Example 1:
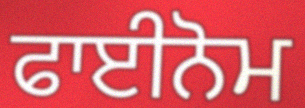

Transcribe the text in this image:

ਫਾਈਨੋਮ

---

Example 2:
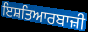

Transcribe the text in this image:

ਇਸ਼ਤਿਆਰਬਾਜ਼ੀ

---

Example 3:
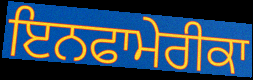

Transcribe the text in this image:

ਇਨਫਾਮੇਰੀਕਾ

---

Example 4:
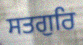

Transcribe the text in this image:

ਸਤਗੁਰਿ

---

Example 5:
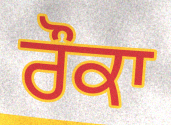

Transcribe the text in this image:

ਰੌਕਾ